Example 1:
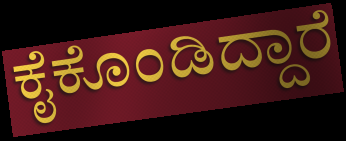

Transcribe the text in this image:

ಕೈಕೊಂಡಿದ್ದಾರೆ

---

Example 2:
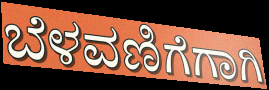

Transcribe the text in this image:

ಬೆಳವಣಿಗೆಗಾಗಿ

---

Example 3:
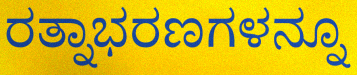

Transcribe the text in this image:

ರತ್ನಾಭರಣಗಳನ್ನೂ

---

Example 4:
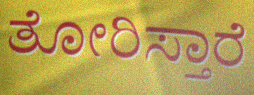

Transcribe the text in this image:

ತೋರಿಸ್ತಾರೆ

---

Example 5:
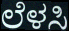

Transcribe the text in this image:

ಲೆಳಸಿ